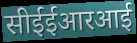
सीईईआरआई